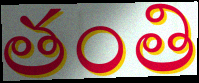
తంతి